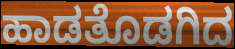
ಹಾಡತೊಡಗಿದ